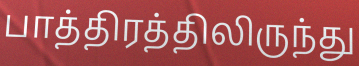
பாத்திரத்திலிருந்து